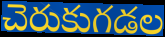
చెరుకుగడల